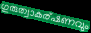
ഗുരുത്വാകര്ഷണവും